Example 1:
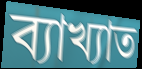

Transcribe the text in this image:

ব্যাখ্যাত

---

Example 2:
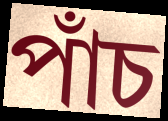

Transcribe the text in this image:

পাঁচ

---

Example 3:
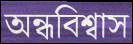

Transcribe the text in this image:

অন্ধবিশ্বাস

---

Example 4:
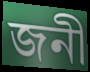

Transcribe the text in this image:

জনী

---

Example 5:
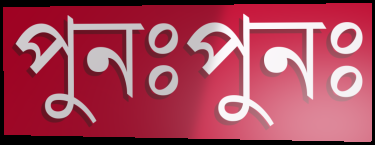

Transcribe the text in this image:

পুনঃপুনঃ